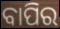
ବାପିର